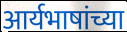
आर्यभाषांच्या